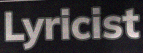
Lyricist